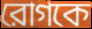
রোগকে